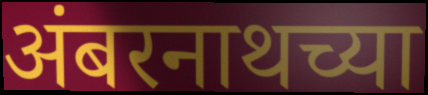
अंबरनाथच्या